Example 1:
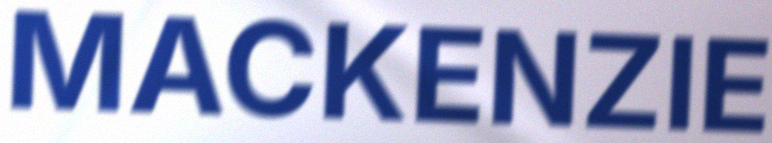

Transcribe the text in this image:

MACKENZIE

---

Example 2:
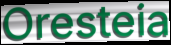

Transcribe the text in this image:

Oresteia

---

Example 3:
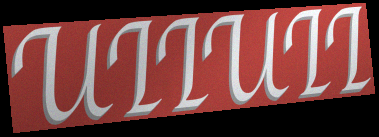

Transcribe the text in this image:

UIIUII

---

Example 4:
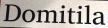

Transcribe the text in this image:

Domitila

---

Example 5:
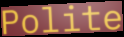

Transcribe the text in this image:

Polite